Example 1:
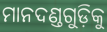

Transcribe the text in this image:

ମାନଦଣ୍ଡଗୁଡ଼ିକୁ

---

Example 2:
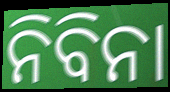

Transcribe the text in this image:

ନିବିନା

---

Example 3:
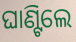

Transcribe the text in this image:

ଘାଣ୍ଟିଲେ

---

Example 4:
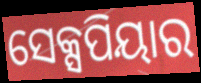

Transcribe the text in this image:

ସେକ୍ସପିୟାର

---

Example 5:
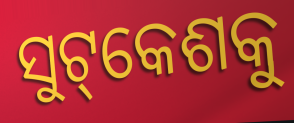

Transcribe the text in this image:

ସୁଟ୍‌କେଶକୁ